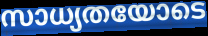
സാധ്യതയോടെ